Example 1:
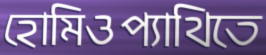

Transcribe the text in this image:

হোমিওপ্যাথিতে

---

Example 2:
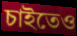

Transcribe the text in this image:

চাইতেও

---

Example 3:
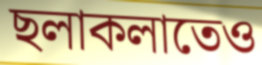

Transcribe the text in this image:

ছলাকলাতেও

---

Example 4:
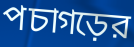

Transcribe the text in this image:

পচাগড়ের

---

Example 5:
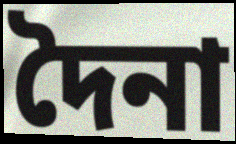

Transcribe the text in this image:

দৈনা